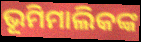
ଭୂମିମାଲିକଙ୍କ